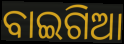
ବାଇଗିଆ